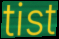
tist